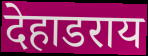
देहाडराय